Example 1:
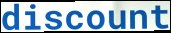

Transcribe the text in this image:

discount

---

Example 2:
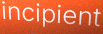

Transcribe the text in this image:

incipient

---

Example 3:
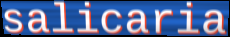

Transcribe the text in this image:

salicaria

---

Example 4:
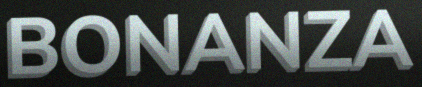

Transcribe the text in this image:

BONANZA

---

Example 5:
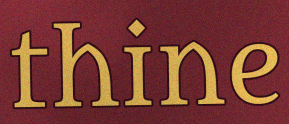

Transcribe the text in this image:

thine